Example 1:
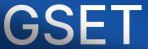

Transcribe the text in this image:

GSET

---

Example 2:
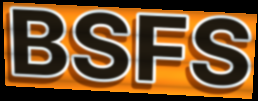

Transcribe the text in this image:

BSFS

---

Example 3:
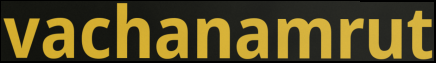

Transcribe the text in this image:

vachanamrut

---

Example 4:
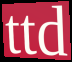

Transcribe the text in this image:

ttd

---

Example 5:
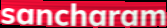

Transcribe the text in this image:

sancharam